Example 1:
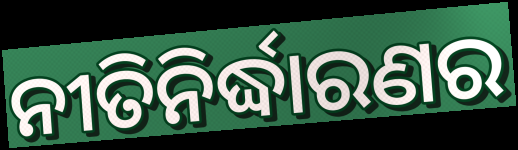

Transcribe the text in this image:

ନୀତିନିର୍ଦ୍ଧାରଣର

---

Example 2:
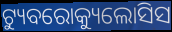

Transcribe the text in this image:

ଟ୍ୟୁବରୋକ୍ୟୁଲୋସିସ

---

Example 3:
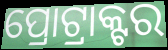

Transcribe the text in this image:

ପ୍ରୋଟ୍ରାକ୍ଟର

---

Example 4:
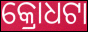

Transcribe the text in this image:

କ୍ରୋଧଟା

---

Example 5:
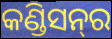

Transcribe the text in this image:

କଣ୍ଡିସନ୍‌ର